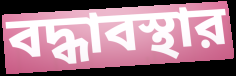
বদ্ধাবস্থার